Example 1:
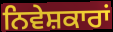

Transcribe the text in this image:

ਨਿਵੇਸ਼ਕਾਰਾਂ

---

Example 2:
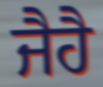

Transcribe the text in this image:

ਜੈਹੈ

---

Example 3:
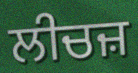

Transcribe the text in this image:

ਲੀਚਜ਼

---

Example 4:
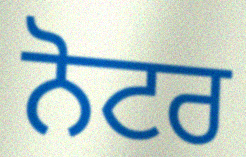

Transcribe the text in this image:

ਨੋਟਰ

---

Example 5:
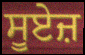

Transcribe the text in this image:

ਸੂਏਜ਼